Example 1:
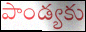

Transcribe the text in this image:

పాండ్యకు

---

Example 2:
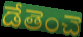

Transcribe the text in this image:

డేతెంచె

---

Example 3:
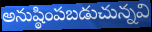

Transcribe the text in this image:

అనుష్ఠింపబడుచున్నవి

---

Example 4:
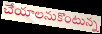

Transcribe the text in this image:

చేయాలనుకొంటున్న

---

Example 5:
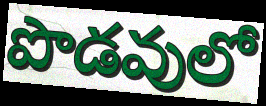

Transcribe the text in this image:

పొడవులో